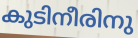
കുടിനീരിനു